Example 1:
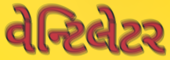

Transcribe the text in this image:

વેન્ટિલેટર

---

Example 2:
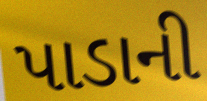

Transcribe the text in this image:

પાડાની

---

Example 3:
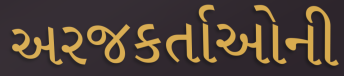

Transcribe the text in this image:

અરજકર્તાઓની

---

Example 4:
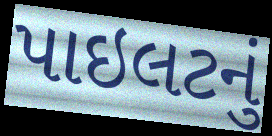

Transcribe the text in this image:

પાઇલટનું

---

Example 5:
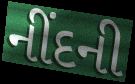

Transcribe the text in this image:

નીંદની